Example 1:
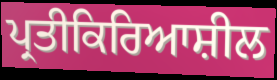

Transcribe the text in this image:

ਪ੍ਰਤੀਕਿਰਿਆਸ਼ੀਲ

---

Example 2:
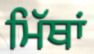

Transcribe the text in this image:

ਮਿੱਥਾਂ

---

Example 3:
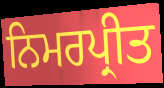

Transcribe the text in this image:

ਨਿਮਰਪ੍ਰੀਤ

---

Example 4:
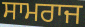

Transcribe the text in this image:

ਸਾਮਰਾਜ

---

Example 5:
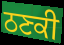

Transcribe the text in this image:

ਠਣਕੀ